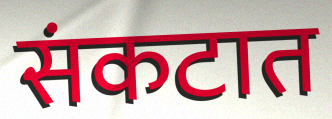
संकटात